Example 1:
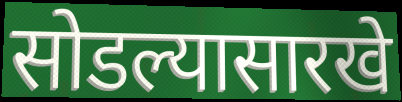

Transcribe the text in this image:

सोडल्यासारखे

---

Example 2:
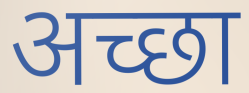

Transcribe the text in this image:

अच्छा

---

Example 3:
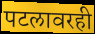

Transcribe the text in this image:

पटलावरही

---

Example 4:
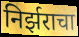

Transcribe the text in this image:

निर्झराचा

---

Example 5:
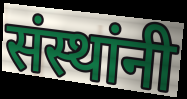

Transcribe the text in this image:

संस्थांनी